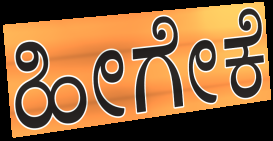
ಹೀಗೇಕೆ